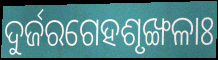
ଦୁର୍ଜରଗେହଶୃଙ୍ଖଳାଃ